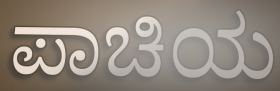
ಪಾಚಿಯ